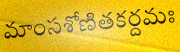
మాంసశోణితకర్దమః